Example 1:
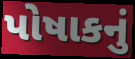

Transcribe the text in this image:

પોષાકનું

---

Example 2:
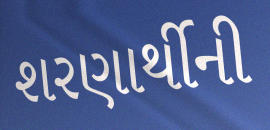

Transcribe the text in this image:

શરણાર્થીની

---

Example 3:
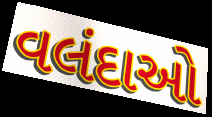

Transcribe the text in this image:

વલંદાઓ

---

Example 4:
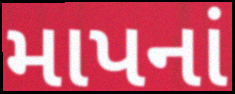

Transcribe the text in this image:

માપનાં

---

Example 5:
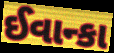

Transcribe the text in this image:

ઈવાન્કા